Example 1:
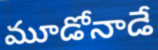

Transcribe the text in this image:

మూడోనాడే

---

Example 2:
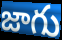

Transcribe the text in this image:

జాగు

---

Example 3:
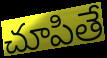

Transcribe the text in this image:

చూపితే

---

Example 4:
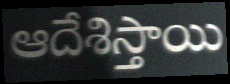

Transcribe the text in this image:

ఆదేశిస్తాయి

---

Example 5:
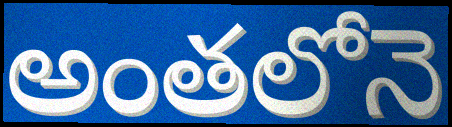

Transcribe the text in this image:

అంతలోనె